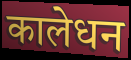
कालेधन